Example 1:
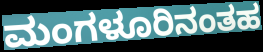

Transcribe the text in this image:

ಮಂಗಳೂರಿನಂತಹ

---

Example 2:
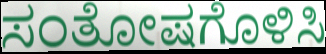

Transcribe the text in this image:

ಸಂತೋಷಗೊಳಿಸಿ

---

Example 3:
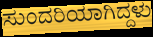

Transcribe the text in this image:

ಸುಂದರಿಯಾಗಿದ್ದಳು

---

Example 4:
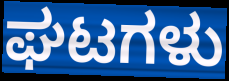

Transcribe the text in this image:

ಘಟಗಳು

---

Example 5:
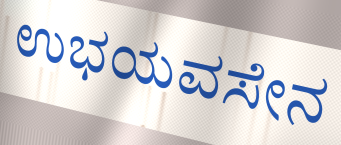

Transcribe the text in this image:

ಉಭಯವಸೇನ